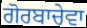
ਗੋਰਬਾਚੇਵਾ